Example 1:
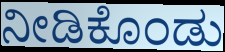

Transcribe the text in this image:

ನೀಡಿಕೊಂಡು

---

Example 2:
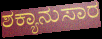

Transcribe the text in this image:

ಶಕ್ಯಾನುಸಾರ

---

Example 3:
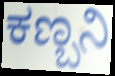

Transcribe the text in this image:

ಕಣ್ಬನಿ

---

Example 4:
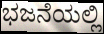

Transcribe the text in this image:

ಭಜನೆಯಲ್ಲಿ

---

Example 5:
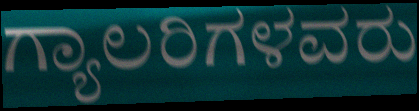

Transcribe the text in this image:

ಗ್ಯಾಲರಿಗಳವರು